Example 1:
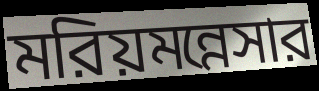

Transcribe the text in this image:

মরিয়মন্নেসার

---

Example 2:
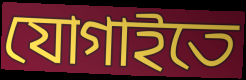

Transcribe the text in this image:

যোগাইতে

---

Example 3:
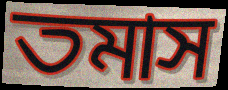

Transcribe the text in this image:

তমাস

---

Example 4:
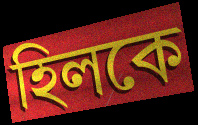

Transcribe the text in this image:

হিলকে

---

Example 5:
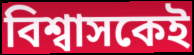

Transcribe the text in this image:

বিশ্বাসকেই